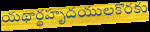
యథార్థహృదయులకొరకు